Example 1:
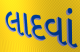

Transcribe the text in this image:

લાદવાં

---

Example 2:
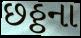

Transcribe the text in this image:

છઠ્ઠના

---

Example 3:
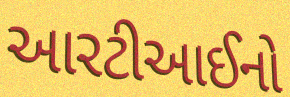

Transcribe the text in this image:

આરટીઆઈનો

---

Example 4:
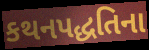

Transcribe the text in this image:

કથનપદ્ધતિના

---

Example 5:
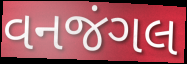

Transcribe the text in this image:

વનજંગલ